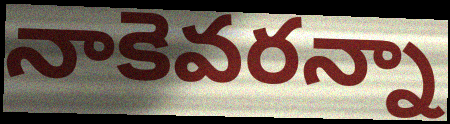
నాకెవరన్నా